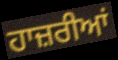
ਹਾਜ਼ਰੀਆਂ